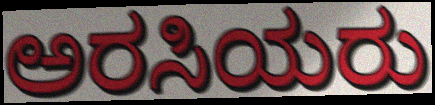
ಅರಸಿಯರು